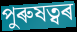
পুৰুষত্বৰ